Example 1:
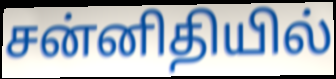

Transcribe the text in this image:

சன்னிதியில்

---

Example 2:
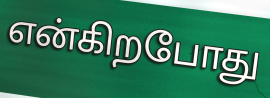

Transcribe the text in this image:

என்கிறபோது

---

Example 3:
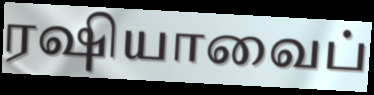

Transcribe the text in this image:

ரஷியாவைப்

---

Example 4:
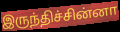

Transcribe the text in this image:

இருந்திச்சின்னா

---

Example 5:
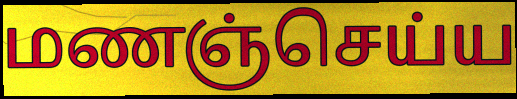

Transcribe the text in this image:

மணஞ்செய்ய